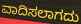
ವಾದಿಸಲಾಗದು